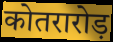
कोतरारोड़